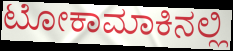
ಟೋಕಾಮಾಕಿನಲ್ಲಿ